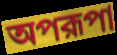
অপরূপা